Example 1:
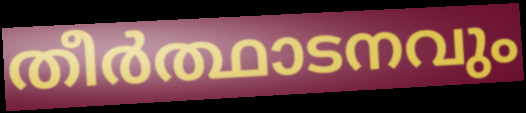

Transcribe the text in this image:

തീർത്ഥാടനവും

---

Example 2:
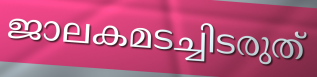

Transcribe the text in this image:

ജാലകമടച്ചിടരുത്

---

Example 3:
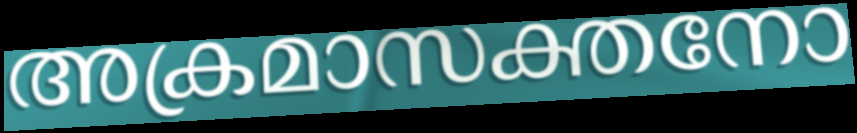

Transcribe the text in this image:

അക്രമാസക്തനോ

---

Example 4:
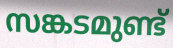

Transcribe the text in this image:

സങ്കടമുണ്ട്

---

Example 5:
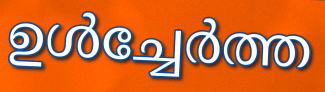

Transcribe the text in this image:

ഉൾച്ചേർത്ത